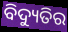
ବିଦ୍ୟୁତିର